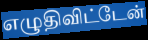
எழுதிவிட்டேன்